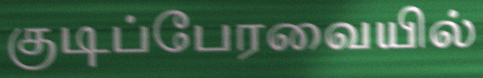
குடிப்பேரவையில்